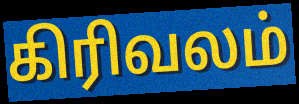
கிரிவலம்